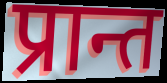
प्रान्त